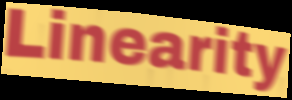
Linearity